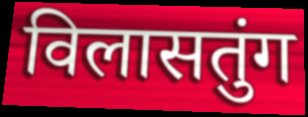
विलासतुंग